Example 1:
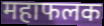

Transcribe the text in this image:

महाफलक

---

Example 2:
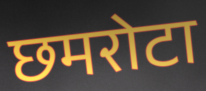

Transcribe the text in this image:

छमरोटा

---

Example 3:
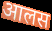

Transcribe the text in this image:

आलस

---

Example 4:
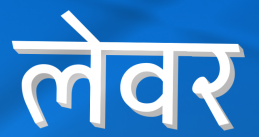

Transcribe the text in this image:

लेवर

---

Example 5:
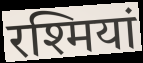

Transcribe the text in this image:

रश्मियां